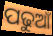
ପଢୁଆଁ